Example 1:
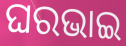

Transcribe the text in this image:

ଘରଭାଇ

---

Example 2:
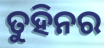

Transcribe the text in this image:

ତୁହିନର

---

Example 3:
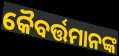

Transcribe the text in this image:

କୈବର୍ତ୍ତମାନଙ୍କ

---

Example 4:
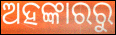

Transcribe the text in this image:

ଅହଙ୍କାରରୁ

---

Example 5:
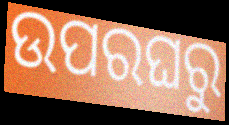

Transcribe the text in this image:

ଉପରଘରୁ